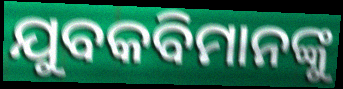
ଯୁବକବିମାନଙ୍କୁ